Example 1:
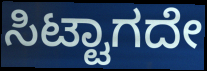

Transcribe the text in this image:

ಸಿಟ್ಟಾಗದೇ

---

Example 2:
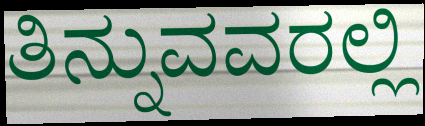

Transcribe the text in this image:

ತಿನ್ನುವವರಲ್ಲಿ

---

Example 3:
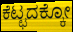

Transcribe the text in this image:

ಕೆಟ್ಟದಕ್ಕೋ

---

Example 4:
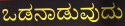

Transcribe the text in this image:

ಒಡನಾಡುವುದು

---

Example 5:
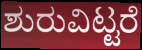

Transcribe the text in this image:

ಶುರುವಿಟ್ಟರೆ